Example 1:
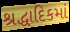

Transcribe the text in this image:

શ્રદ્ધાદિકમાં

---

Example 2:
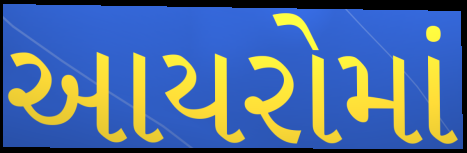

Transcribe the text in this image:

આયરોમાં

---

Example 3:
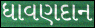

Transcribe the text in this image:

ધાવણદાન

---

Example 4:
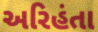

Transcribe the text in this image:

અરિહંતા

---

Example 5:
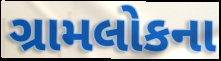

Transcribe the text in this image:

ગ્રામલોકના